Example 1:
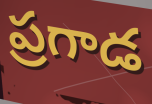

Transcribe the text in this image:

ప్రగాడ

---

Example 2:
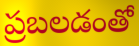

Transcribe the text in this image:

ప్రబలడంతో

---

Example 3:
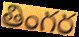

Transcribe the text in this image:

తింగర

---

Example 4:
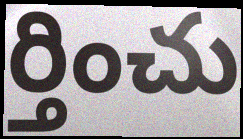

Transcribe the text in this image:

ర్తించు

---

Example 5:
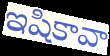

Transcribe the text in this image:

ఇషికావా